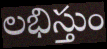
లభిస్తుం